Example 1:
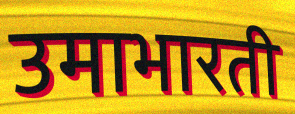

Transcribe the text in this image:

उमाभारती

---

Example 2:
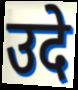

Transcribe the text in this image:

उदे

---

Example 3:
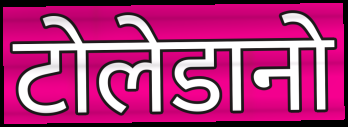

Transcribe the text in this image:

टोलेडानो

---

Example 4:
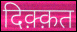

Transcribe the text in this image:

दिक़्क़त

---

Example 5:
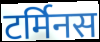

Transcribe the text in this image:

टर्मिनस